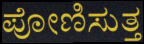
ಪೋಣಿಸುತ್ತ